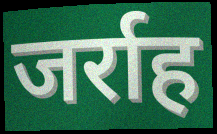
जर्राह